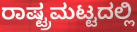
ರಾಷ್ಟ್ರಮಟ್ಟದಲ್ಲಿ